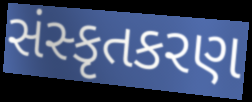
સંસ્કૃતકરણ